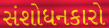
સંશોધનકારો